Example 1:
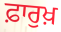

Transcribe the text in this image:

ਫ਼ਾਰੁਖ਼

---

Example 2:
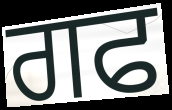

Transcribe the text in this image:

ਗਫ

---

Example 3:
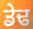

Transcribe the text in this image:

ਡੇਢ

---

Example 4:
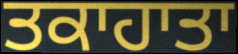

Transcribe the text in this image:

ਤਕਾਹਾਤਾ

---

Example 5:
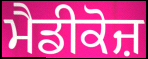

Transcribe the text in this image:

ਮੈਡੀਕੋਜ਼